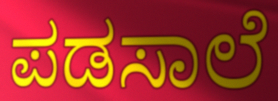
ಪಡಸಾಲೆ